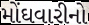
મોંઘવારીનો